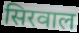
सिरवाल